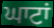
ਘਾਟਾਂ